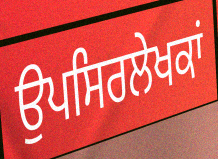
ਉਪਸਿਰਲੇਖਕਾਂ